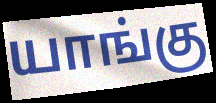
யாங்கு